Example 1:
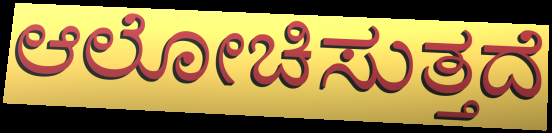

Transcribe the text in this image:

ಆಲೋಚಿಸುತ್ತದೆ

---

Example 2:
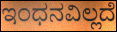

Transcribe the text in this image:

ಇಂಧನವಿಲ್ಲದೆ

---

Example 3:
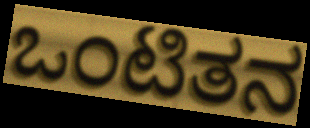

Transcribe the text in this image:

ಒಂಟಿತನ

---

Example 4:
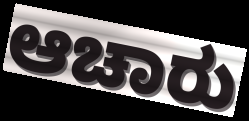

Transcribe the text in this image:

ಆಚಾರು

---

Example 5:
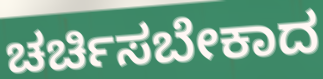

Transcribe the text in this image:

ಚರ್ಚಿಸಬೇಕಾದ